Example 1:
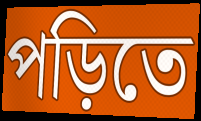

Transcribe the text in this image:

পড়িতে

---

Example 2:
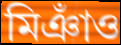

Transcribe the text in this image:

মিঞাঁও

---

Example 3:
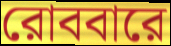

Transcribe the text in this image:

রোববারে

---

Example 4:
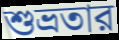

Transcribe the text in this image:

শুভ্রতার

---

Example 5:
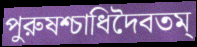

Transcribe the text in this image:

পুরুষশ্চাধিদৈবতম্